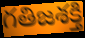
గతిజశక్తి